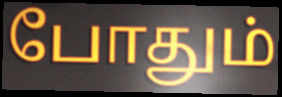
போதும்